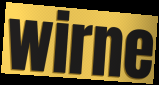
wirne